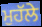
ਮੁਹੱਲੇ